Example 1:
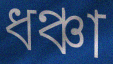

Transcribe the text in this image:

ধঞ্চা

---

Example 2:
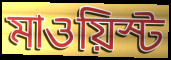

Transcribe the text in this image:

মাওয়িস্ট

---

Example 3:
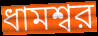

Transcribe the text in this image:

ধামশ্বর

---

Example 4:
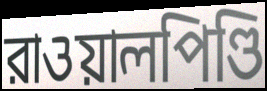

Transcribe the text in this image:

রাওয়ালপিণ্ডি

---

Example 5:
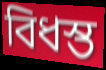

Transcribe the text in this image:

বিধস্ত